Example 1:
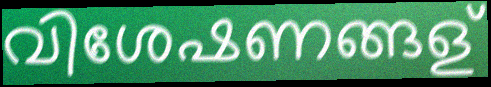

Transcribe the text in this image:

വിശേഷണങ്ങള്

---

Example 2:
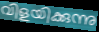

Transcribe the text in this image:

വിളയിക്കുന്നു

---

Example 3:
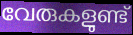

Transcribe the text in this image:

വേരുകളുണ്ട്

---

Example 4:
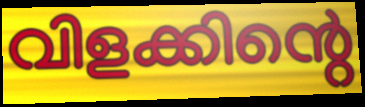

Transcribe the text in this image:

വിളക്കിന്റെ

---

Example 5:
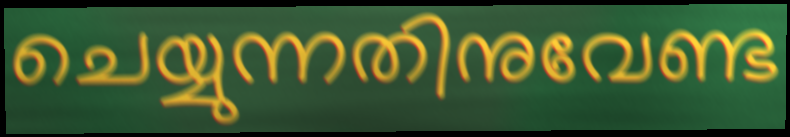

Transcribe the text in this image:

ചെയ്യുന്നതിനുവേണ്ട